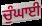
ਚੁੰਘਾਈ